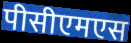
पीसीएमएस